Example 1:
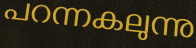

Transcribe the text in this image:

പറന്നകലുന്നു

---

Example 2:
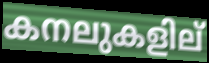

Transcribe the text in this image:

കനലുകളില്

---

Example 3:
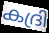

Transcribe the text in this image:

കദ്രി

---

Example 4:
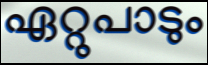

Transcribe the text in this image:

ഏറ്റുപാടും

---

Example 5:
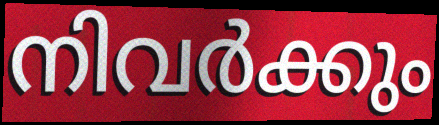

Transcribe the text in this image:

നിവർക്കും